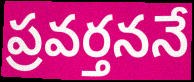
ప్రవర్తననే